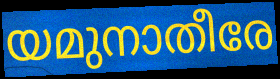
യമുനാതീരേ